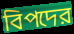
বিপদের